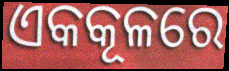
ଏକକୂଳରେ